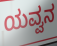
ಯವ್ವನ